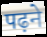
पढ़ने